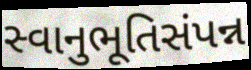
સ્વાનુભૂતિસંપન્ન